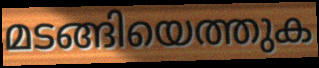
മടങ്ങിയെത്തുക